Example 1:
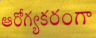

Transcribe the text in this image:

ఆరోగ్యకరంగా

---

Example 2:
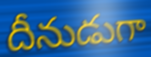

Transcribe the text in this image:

దీనుడుగా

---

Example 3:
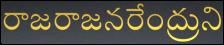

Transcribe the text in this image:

రాజరాజనరేంద్రుని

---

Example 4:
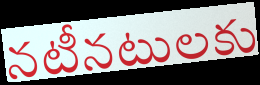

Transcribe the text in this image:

నటీనటులకు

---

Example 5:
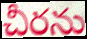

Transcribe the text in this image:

చీరను